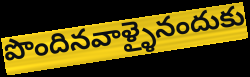
పొందినవాళ్ళైనందుకు